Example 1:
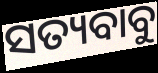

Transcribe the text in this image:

ସତ୍ୟବାବୁ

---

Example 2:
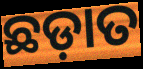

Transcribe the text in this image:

ଛଡ଼ାତ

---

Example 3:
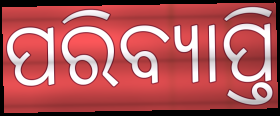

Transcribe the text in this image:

ପରିବ୍ୟାପ୍ତି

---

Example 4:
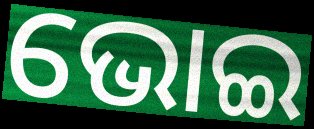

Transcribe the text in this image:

ଭୋଇ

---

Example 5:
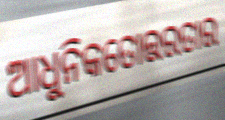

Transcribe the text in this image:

ଆଧୁନିକତୋତ୍ତରତାର